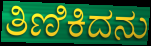
ತಿಣಿಕಿದನು